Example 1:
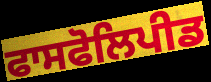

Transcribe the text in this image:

ਫਾਸਫੋਲਿਪੀਡ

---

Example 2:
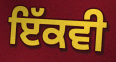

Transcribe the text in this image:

ਇੱਕਵੀ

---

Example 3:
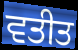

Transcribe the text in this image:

ਵਤੀਤ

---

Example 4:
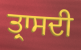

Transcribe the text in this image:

ਤ੍ਰਾਸਦੀ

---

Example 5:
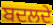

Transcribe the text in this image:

ਬਦਲਦੇ